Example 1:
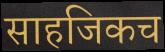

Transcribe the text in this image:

साहजिकच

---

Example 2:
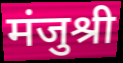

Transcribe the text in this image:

मंजुश्री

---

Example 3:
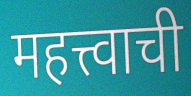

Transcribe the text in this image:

महत्त्वाची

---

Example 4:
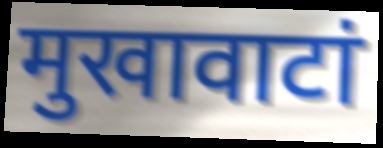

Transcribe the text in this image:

मुखावाटां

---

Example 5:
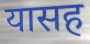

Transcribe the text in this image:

यासह